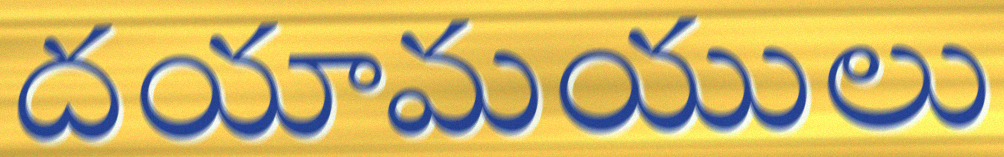
దయామయులు